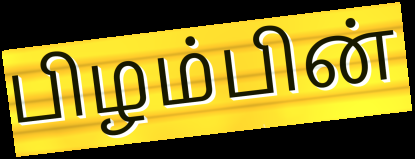
பிழம்பின்